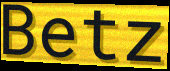
Betz